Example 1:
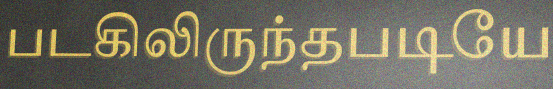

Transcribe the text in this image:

படகிலிருந்தபடியே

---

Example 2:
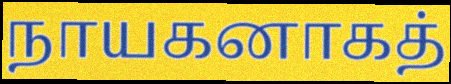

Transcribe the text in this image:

நாயகனாகத்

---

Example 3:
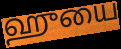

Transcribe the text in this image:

ஹுயை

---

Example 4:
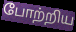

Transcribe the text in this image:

போற்றிய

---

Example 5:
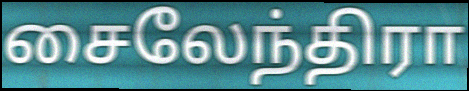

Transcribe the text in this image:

சைலேந்திரா